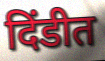
दिंडीत